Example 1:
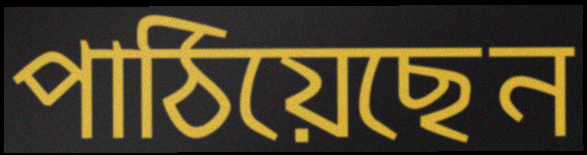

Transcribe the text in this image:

পাঠিয়েছেন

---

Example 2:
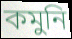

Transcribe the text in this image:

কমুনি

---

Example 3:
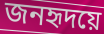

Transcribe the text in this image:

জনহৃদয়ে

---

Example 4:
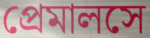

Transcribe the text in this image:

প্রেমালসে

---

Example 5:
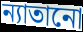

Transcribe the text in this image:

ন্যাতানো